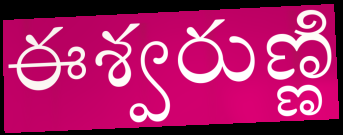
ఈశ్వరుణ్ణి